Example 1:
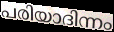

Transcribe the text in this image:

പരിയാദിന്നം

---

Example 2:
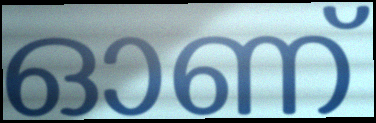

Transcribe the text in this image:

ഓണ്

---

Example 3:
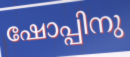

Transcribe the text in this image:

ഷോപ്പിനു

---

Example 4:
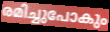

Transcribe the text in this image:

രമിച്ചുപോകും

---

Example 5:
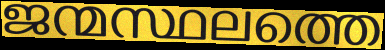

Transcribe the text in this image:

ജന്മസ്ഥലത്തെ